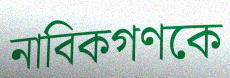
নাবিকগণকে